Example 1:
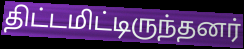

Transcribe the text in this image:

திட்டமிட்டிருந்தனர்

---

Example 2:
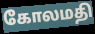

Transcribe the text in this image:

கோலமதி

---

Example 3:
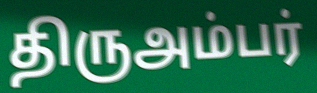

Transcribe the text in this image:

திருஅம்பர்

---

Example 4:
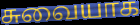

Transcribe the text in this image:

சுவையாக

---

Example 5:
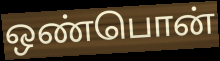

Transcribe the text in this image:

ஒண்பொன்